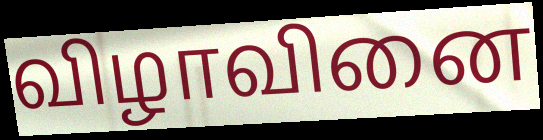
விழாவினை